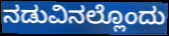
ನಡುವಿನಲ್ಲೊಂದು